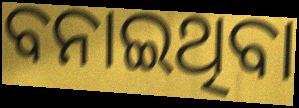
ବନାଇଥିବା